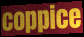
coppice